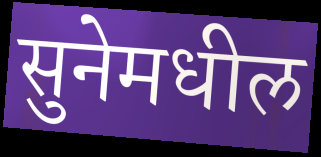
सुनेमधील